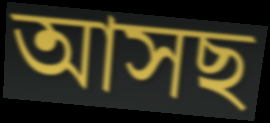
আসছ